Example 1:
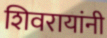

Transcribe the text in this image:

शिवरायांनी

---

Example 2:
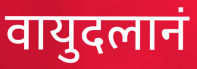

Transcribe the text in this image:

वायुदलानं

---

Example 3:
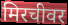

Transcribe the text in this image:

मिरचीवर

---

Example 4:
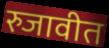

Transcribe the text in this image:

रुजावीत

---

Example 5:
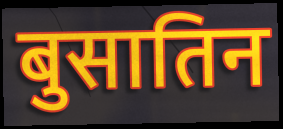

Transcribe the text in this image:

बुसातिन